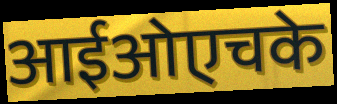
आईओएचके